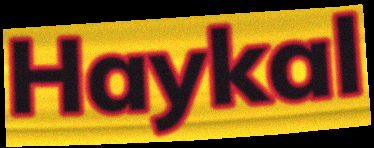
Haykal